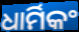
ଧାର୍ମିକଂ